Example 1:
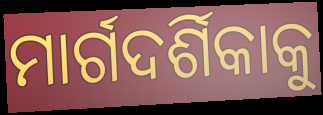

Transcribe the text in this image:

ମାର୍ଗଦର୍ଶିକାକୁ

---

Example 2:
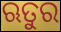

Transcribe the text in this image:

ଋତୁର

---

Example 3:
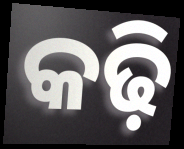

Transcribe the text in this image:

କଢ଼ି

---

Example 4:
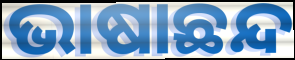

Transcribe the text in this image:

ଭାଷାଛନ୍ଦ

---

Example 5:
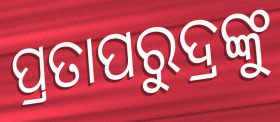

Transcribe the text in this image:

ପ୍ରତାପରୁଦ୍ରଙ୍କୁ